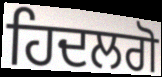
ਹਿਦਲਗੋ